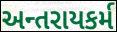
અન્તરાયકર્મ